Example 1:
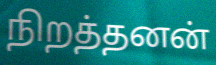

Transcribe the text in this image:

நிறத்தனன்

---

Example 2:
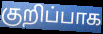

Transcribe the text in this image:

குறிப்பாக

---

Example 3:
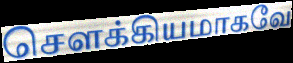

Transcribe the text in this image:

சௌக்கியமாகவே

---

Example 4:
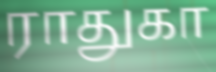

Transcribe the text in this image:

ராதுகா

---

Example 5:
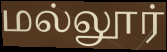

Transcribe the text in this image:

மல்லூர்